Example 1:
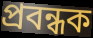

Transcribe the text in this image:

প্ৰবন্ধক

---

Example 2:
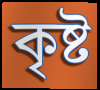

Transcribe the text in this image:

কৃষ্ট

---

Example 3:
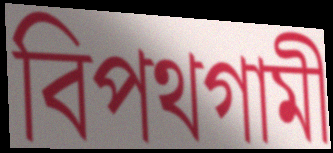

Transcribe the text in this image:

বিপথগামী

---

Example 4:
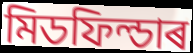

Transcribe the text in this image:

মিডফিল্ডাৰ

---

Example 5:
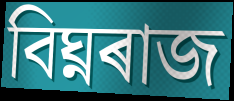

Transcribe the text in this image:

বিঘ্নৰাজ